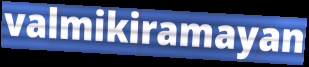
valmikiramayan